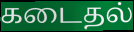
கடைதல்